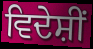
ਵਿਦੇਸ਼ੀਂ